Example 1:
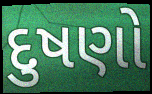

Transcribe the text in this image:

દુષણો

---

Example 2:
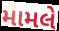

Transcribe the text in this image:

મામલે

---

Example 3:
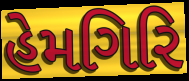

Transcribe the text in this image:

હેમગિરિ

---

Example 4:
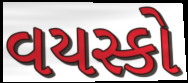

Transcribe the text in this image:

વયસ્કો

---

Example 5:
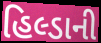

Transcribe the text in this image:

હિલ્ડાની